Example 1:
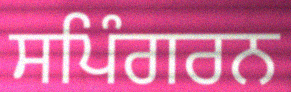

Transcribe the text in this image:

ਸਪਿੰਗਰਨ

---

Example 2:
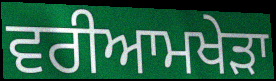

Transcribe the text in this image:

ਵਰੀਆਮਖੇੜਾ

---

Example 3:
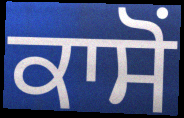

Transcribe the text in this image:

ਕਾਸੋਂ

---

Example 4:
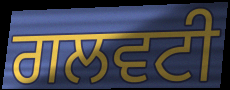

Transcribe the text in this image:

ਗਲਵਟੀ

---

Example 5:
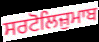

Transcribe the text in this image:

ਸਰਟੋਲਿਜ਼ੁਮਾਬ